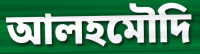
আলহমৌদি